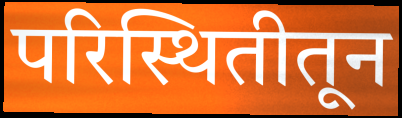
परिस्थितीतून